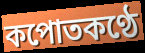
কপোতকণ্ঠে